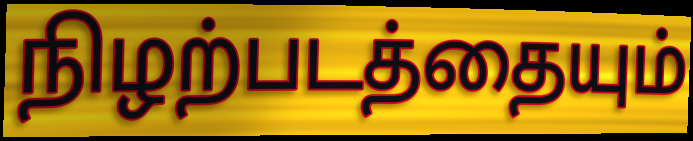
நிழற்படத்தையும்